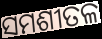
ସମଶୀତଳ